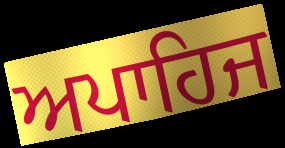
ਅਪਾਹਿਜ